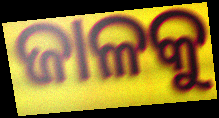
ଜାଳକୁ